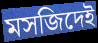
মসজিদেই